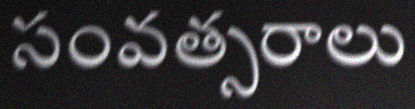
సంవత్సరాలు